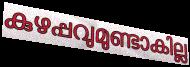
കുഴപ്പവുമുണ്ടാകില്ല